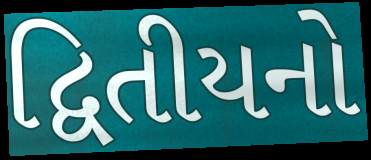
દ્વિતીયનો